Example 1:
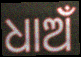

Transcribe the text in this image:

ଧାଅଁ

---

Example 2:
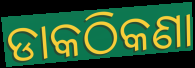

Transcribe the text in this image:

ଡାକଠିକଣା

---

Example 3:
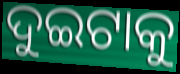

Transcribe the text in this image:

ଦୁଇଟାକୁ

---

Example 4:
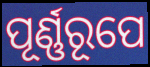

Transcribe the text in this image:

ପୂର୍ଣ୍ଣରୂପେ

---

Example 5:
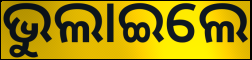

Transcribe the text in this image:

ଭୁଲାଇଲେ